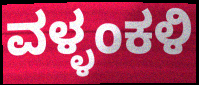
ವಳ್ಳಂಕಳಿ